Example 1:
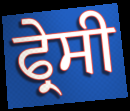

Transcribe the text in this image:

ਫ੍ਰੇਸੀ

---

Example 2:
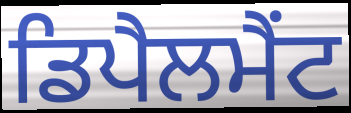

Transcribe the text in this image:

ਡਿਪੈਲਮੈਂਟ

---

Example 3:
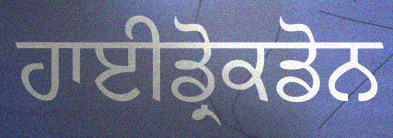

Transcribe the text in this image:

ਹਾਈਡ੍ਰੋਕਡੋਨ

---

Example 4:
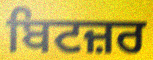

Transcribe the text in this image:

ਬਿਟਜ਼ਰ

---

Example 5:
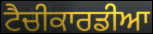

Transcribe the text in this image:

ਟੈਚੀਕਾਰਡੀਆ